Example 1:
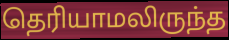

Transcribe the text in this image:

தெரியாமலிருந்த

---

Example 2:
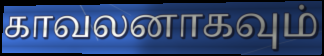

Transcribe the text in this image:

காவலனாகவும்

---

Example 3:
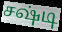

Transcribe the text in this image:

சஷ்டி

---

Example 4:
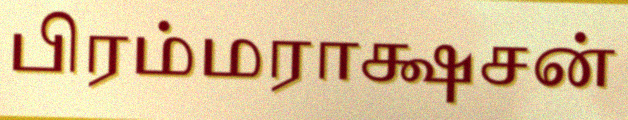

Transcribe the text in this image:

பிரம்மராக்ஷசன்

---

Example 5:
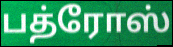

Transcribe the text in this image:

பத்ரோஸ்